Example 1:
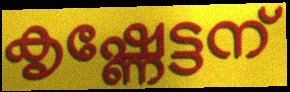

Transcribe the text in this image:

കൃഷ്ണേട്ടന്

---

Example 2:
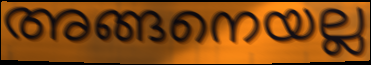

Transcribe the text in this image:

അങ്ങനെയല്ല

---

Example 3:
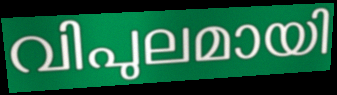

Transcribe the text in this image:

വിപുലമായി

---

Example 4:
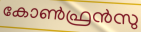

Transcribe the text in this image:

കോൺഫ്രൻസു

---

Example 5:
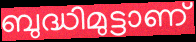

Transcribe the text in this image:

ബുദ്ധിമുട്ടാണ്